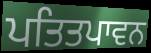
ਪਤਿਤਪਾਵਨ